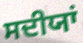
ਸਦੀਯਾਂ